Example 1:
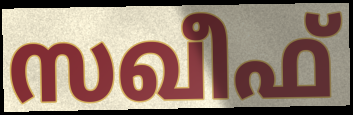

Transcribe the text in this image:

സഖീഫ്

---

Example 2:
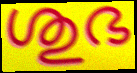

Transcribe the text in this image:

ശുഭ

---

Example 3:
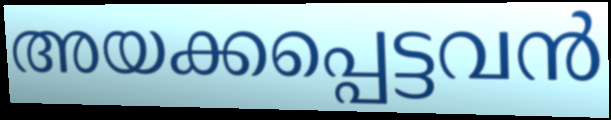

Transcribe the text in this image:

അയക്കപ്പെട്ടവൻ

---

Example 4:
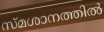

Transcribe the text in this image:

സ്മശാനത്തിൽ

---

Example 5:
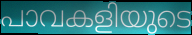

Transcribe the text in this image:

പാവകളിയുടെ